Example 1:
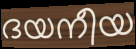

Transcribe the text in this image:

ദയനീയ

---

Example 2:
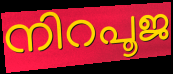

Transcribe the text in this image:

നിറപൂജ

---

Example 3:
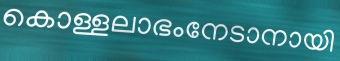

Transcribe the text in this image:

കൊള്ളലാഭംനേടാനായി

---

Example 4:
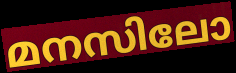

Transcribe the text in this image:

മനസിലോ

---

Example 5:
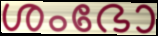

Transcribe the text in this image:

ശംഭോ